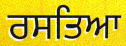
ਰਸਤਿਆ